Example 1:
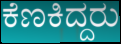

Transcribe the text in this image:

ಕೆಣಕಿದ್ದರು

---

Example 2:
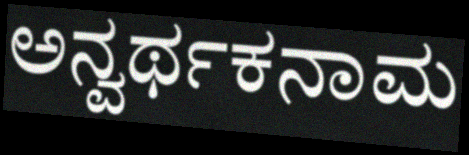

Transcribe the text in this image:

ಅನ್ವರ್ಥಕನಾಮ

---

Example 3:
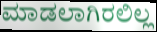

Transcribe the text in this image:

ಮಾಡಲಾಗಿರಲಿಲ್ಲ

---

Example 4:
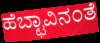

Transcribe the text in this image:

ಹೆಬ್ಟಾವಿನಂತೆ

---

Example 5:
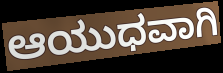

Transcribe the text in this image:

ಆಯುಧವಾಗಿ